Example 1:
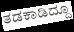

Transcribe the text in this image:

ತಡಕಾಡಿದ್ದೂ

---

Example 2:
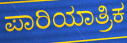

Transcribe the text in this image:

ಪಾರಿಯಾತ್ರಿಕ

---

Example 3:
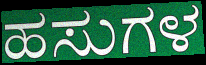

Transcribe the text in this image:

ಹಸುಗಳ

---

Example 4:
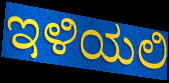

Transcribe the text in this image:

ಇಳಿಯಲಿ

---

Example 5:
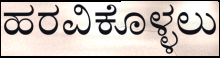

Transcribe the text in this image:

ಹರವಿಕೊಳ್ಳಲು